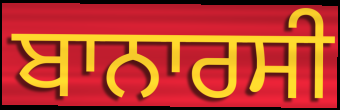
ਬਾਨਾਰਸੀ